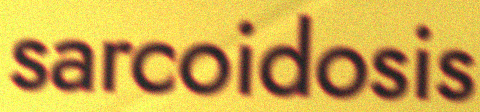
sarcoidosis